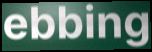
ebbing